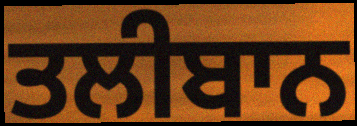
ਤਲੀਬਾਨ